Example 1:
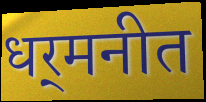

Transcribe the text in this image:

धर्मनीत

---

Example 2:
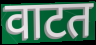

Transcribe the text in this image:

वाटत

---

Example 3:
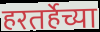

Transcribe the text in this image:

हरतर्हेच्या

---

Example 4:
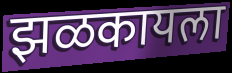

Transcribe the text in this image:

झळकायला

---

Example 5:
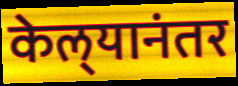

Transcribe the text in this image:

केल्यानंतर